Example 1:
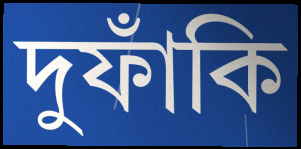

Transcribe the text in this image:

দুফাঁকি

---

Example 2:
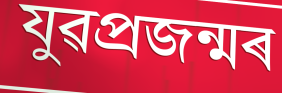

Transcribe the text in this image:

যুৱপ্ৰজন্মৰ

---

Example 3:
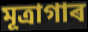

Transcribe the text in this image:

মূত্ৰাগাৰ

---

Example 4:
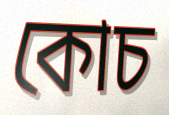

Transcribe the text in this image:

কোচ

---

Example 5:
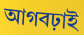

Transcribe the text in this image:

আগবঢ়াই